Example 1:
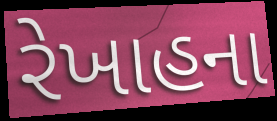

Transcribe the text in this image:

રેખાહના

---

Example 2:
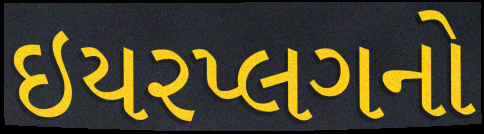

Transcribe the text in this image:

ઇયરપ્લગનો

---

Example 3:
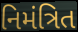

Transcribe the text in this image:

નિમંત્રિત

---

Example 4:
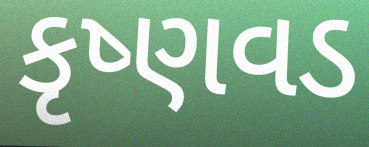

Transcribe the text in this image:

કૃષ્ણવડ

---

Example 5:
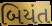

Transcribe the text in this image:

બિયંત